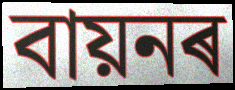
বায়নৰ